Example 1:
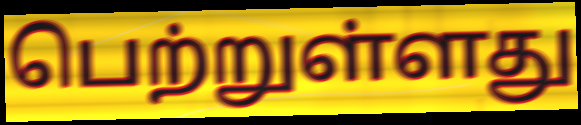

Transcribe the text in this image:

பெற்றுள்ளது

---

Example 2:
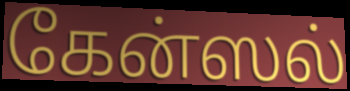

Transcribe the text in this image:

கேன்ஸல்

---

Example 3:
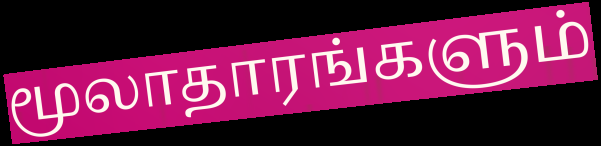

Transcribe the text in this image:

மூலாதாரங்களும்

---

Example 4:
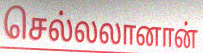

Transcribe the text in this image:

செல்லலானான்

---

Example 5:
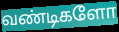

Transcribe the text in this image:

வண்டிகளோ